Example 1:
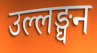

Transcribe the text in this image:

उल्लङ्घन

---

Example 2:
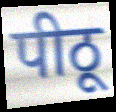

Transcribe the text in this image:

पीठू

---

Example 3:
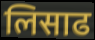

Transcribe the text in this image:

लिसाढ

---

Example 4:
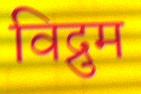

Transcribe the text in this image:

विद्रुम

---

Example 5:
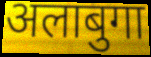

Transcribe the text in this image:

अलाबुगा